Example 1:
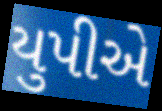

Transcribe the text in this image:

યુપીએ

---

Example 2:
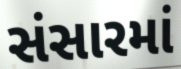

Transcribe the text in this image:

સંસારમાં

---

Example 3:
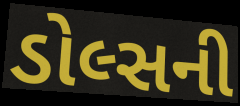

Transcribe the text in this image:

ડોલ્સની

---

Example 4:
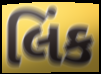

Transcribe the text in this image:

લિંક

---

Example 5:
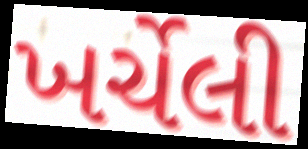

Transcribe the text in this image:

ખર્ચેલી